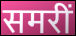
समरीं